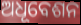
ଅଧୂବେଶନ